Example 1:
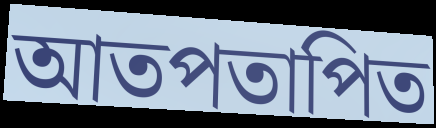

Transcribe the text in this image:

আতপতাপিত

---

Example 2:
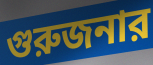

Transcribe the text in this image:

গুরুজনার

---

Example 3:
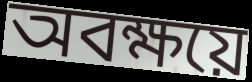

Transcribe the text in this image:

অবক্ষয়ে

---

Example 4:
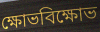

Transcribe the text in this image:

ক্ষোভবিক্ষোভ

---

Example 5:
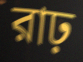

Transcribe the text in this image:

রাঢ়